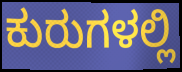
ಕುರುಗಳಲ್ಲಿ